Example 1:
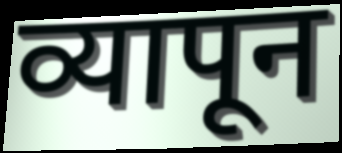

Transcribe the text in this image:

व्यापून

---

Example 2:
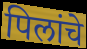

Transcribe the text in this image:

पिलांचे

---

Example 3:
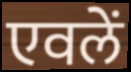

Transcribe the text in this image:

एवलें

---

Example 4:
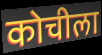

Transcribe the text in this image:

कोचीला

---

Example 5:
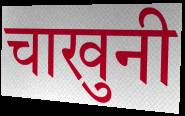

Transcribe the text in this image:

चाखुनी